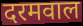
दरमवाल